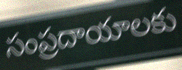
సంప్రదాయాలకు